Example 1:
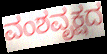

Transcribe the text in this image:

ವಂಶವೃಕ್ಷದ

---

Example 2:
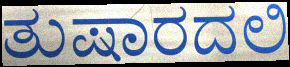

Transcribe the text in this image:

ತುಷಾರದಲಿ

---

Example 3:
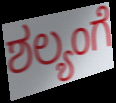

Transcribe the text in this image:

ಶಲ್ಯಂಗೆ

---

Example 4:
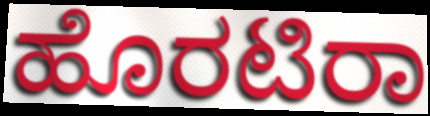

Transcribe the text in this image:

ಹೊರಟಿರಾ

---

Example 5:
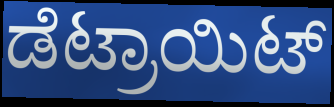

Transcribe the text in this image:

ಡೆಟ್ರಾಯಿಟ್